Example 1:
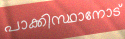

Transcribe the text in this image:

പാക്കിസ്ഥാനോട്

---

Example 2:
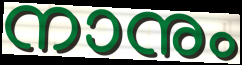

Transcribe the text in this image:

നാനും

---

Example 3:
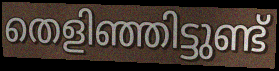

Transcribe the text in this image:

തെളിഞ്ഞിട്ടുണ്ട്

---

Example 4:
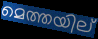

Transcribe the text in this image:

മെത്തയില്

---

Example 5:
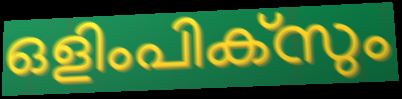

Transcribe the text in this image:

ഒളിംപിക്സും